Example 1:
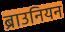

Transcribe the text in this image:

ब्राउनियन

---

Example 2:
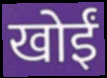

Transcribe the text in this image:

खोईं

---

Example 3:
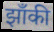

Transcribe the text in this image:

झाँकी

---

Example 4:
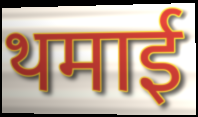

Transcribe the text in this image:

थमाई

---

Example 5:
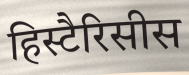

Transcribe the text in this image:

हिस्टैरिसीस